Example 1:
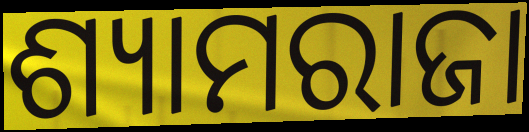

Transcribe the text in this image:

ଶ୍ୟାମରାଜା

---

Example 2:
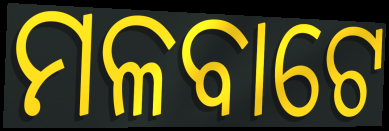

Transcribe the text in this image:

ମଳବାଟେ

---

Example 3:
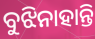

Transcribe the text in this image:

ବୁଝିନାହାନ୍ତି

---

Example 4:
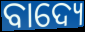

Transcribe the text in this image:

ବାଦ୍ୟେ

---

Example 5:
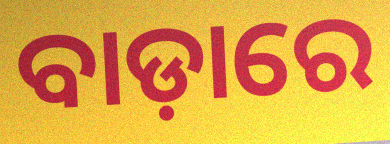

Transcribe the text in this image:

ବାଡ଼ାରେ